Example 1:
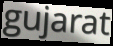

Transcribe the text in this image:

gujarat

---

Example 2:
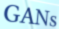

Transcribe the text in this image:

GANs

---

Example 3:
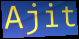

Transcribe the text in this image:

Ajit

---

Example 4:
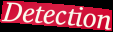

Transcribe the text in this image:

Detection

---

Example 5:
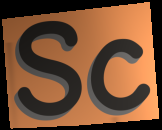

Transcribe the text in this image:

Sc